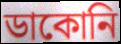
ডাকোনি